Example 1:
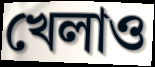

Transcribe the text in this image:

খেলাও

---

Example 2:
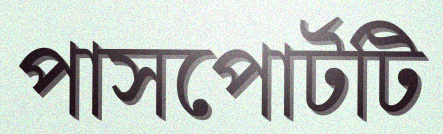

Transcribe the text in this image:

পাসপোর্টটি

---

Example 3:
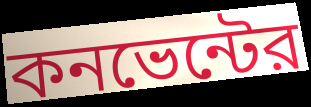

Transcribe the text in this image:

কনভেন্টের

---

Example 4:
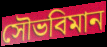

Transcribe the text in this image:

সৌভবিমান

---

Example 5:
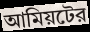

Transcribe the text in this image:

আমিয়টের